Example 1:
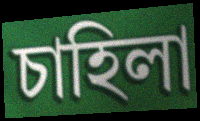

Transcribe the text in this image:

চাহিলা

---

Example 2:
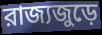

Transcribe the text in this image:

রাজ্যজুড়ে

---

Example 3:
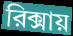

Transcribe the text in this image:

রিক্সায়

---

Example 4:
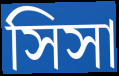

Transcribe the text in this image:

সিসা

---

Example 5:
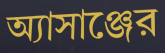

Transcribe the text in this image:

অ্যাসাঞ্জের